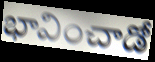
భావించాడో